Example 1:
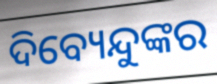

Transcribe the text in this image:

ଦିବ୍ୟେନ୍ଦୁଙ୍କର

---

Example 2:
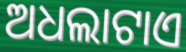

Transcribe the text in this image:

ଅଧଲାଟାଏ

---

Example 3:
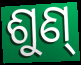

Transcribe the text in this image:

ଶୁଣ୍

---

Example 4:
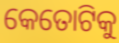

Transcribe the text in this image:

କେତୋଟିକୁ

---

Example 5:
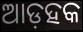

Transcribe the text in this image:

ଆଡ଼ହକ